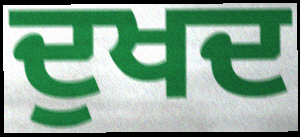
ਦੁਖਦ